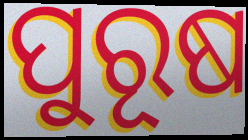
ପୁରୂଷ